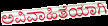
ಅವಿವಾಹಿತೆಯಾಗಿ